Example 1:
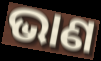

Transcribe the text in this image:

ଭାଣ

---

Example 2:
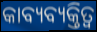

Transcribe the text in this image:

କାବ୍ୟବ୍ୟକ୍ତିତ୍ୱ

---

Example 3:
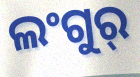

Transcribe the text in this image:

ଲଂଗୁର୍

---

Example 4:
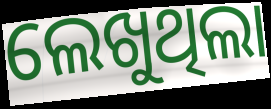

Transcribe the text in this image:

ଲେଖୁଥିଲା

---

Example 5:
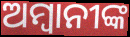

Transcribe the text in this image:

ଅମ୍ବାନୀଙ୍କ